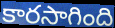
కారసాగింది